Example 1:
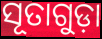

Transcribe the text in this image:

ସୂତାଗୁଡ଼ା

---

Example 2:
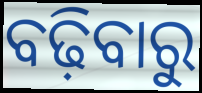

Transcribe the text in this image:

ବଢ଼ିବାରୁ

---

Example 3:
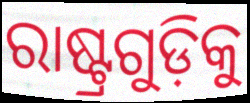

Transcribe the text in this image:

ରାଷ୍ଟ୍ରଗୁଡ଼ିକୁ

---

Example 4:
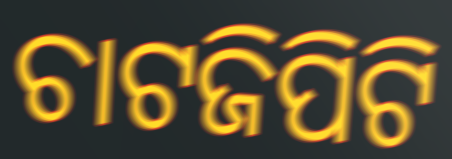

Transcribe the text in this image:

ଚାଟଜିପିଟି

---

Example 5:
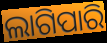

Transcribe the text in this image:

ଲାଗିପାରି